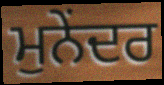
ਮੁਨੇਂਦਰ